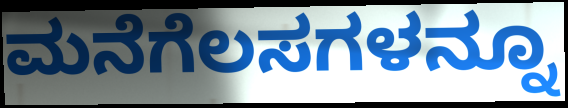
ಮನೆಗೆಲಸಗಳನ್ನೂ